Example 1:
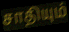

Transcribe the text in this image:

சாதியும்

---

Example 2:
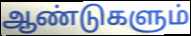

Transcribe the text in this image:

ஆண்டுகளும்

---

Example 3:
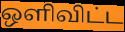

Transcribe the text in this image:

ஒளிவிட்ட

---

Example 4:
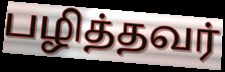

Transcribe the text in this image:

பழித்தவர்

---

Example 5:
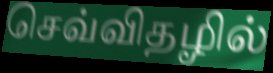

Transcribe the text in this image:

செவ்விதழில்